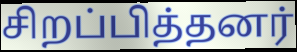
சிறப்பித்தனர்